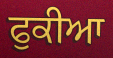
ਫੁਕੀਆ